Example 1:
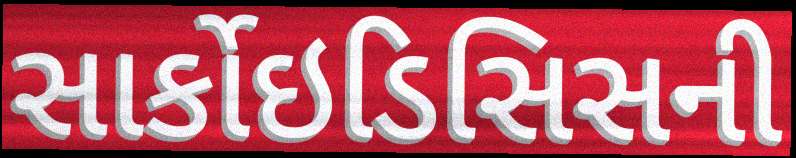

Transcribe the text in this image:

સાર્કોઇડિસિસની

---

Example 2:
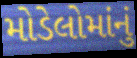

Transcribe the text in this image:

મોડેલોમાંનું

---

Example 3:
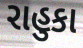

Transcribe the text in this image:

રાહુકા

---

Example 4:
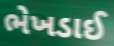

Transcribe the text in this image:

ભેખડાઈ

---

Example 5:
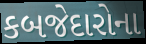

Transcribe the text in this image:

કબજેદારોના